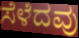
ಸೆಳೆದವು